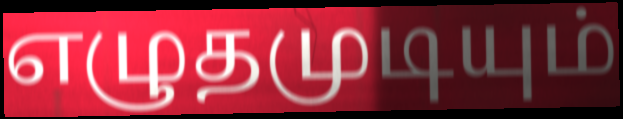
எழுதமுடியும்